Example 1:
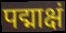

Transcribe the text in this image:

पद्माक्षं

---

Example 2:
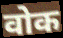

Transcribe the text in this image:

वोक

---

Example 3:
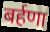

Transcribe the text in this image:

बर्हणा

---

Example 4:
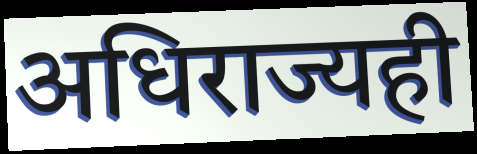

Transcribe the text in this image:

अधिराज्यही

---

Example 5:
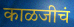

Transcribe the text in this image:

काळजीचं